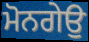
ਮੋਨਗੇਉ